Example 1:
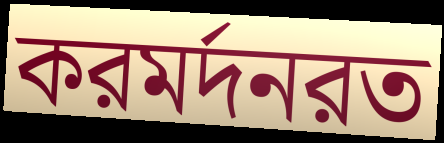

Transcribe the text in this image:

করমর্দনরত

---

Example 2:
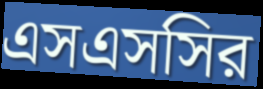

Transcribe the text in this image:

এসএসসির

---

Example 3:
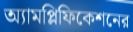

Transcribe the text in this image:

অ্যামপ্লিফিকেশনের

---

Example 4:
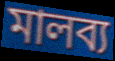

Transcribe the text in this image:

মালব্য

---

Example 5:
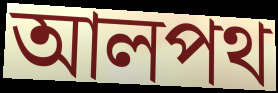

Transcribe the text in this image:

আলপথ